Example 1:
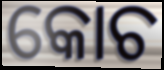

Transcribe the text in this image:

କୋଚ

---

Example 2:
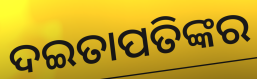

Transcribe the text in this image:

ଦଇତାପତିଙ୍କର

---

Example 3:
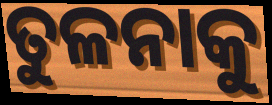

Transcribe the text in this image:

ତୁଳନାକୁ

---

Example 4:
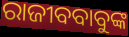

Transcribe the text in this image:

ରାଜୀବବାବୁଙ୍କ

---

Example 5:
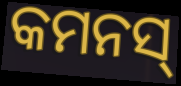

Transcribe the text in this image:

କମନସ୍